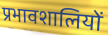
प्रभावशालियों